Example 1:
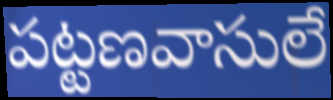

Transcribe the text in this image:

పట్టణవాసులే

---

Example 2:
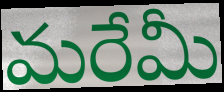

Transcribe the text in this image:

మరేమీ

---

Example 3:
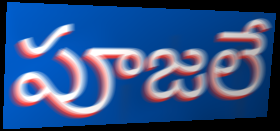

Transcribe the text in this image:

పూజలే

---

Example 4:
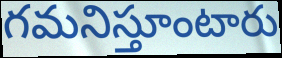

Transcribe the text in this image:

గమనిస్తూంటారు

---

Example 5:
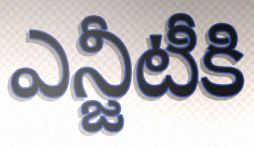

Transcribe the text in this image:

ఎన్జీటీకి